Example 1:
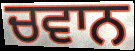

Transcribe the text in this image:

ਚਵਾਨ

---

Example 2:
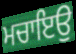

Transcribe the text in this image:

ਮਚਾਇਉ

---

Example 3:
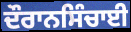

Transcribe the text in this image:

ਦੌਰਾਨਸਿੰਚਾਈ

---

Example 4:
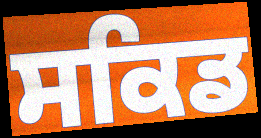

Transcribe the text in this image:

ਸਕਿਡ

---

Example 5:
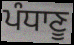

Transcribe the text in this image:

ਪੰਧਾਣੂ